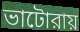
ভাটোরায়